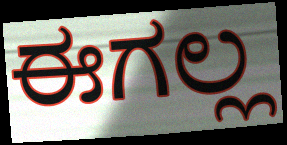
ಈಗಲ್ಲ